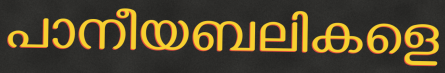
പാനീയബലികളെ